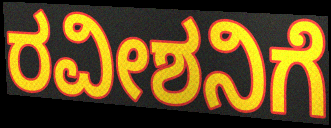
ರವೀಶನಿಗೆ